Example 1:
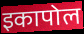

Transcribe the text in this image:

इकापोल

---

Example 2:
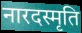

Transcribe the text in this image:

नारदस्मृति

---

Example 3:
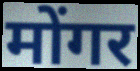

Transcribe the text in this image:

मोंगर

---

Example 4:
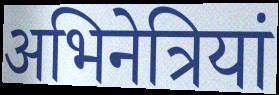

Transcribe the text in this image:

अभिनेत्रियां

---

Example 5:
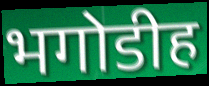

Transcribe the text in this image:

भगोडीह